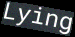
Lying